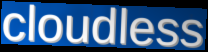
cloudless